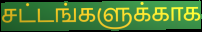
சட்டங்களுக்காக